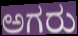
ಅಗರು